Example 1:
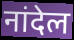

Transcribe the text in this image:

नांदेल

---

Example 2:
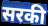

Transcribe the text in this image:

सरकी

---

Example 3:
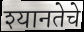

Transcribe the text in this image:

श्यानतेचे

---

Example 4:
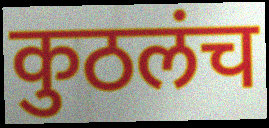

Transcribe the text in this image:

कुठलंच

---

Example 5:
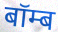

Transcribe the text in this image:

बॉम्ब